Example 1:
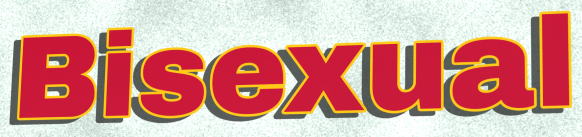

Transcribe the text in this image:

Bisexual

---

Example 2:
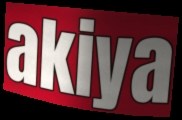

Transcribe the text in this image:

akiya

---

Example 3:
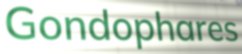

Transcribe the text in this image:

Gondophares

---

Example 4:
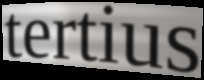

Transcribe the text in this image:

tertius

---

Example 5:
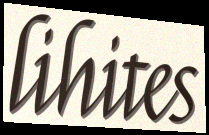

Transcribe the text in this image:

lihites